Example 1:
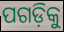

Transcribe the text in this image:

ପଗଡ଼ିକୁ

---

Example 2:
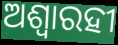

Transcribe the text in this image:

ଅଶ୍ୱାରହୀ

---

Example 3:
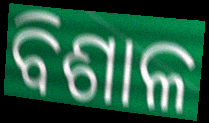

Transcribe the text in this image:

ବିଶାଳ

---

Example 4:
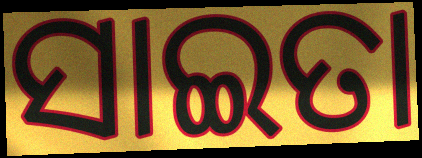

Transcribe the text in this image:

ସାଇତା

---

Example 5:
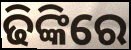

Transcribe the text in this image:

ଢିଙ୍କିରେ